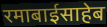
रमाबाईसाहेब